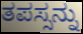
ತಪಸ್ಸನ್ನು